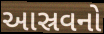
આસ્રવનો